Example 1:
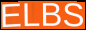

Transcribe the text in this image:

ELBS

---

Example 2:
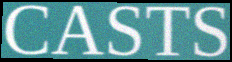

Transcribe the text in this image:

CASTS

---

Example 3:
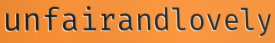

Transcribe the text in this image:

unfairandlovely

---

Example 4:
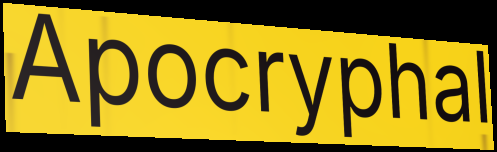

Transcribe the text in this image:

Apocryphal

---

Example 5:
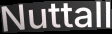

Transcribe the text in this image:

Nuttall